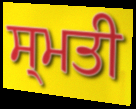
ਸ੍ਮਤੀ